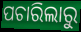
ପଚାରିଲାରୁ